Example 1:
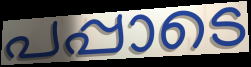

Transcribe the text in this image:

പപ്പാടെ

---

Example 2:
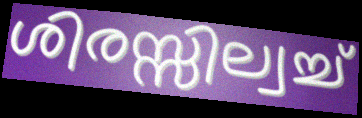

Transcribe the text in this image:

ശിരസ്സില്വച്ച്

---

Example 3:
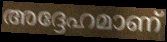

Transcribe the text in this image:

അദ്ദേഹമാണ്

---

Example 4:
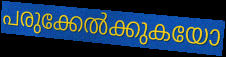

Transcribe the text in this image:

പരുക്കേൽക്കുകയോ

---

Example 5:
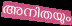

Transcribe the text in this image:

അനിതയും